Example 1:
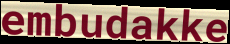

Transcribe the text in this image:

embudakke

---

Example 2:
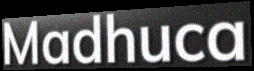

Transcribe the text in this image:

Madhuca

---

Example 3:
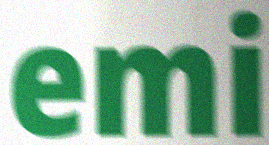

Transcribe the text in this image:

emi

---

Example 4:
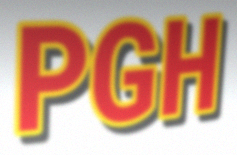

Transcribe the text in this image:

PGH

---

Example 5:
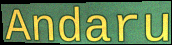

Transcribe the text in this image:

Andaru